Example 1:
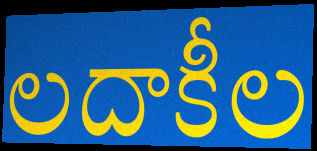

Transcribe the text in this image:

లదాకీల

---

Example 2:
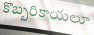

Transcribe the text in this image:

కొబ్బరికాయలూ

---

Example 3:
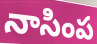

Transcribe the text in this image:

నాసింప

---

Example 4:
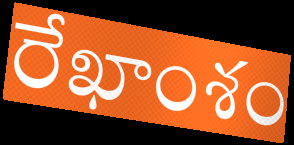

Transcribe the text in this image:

రేఖాంశం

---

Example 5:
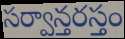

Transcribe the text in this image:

సర్వాన్తరస్తం